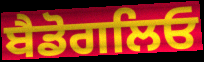
ਬੈਡੋਗਲਿਓ